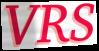
VRS